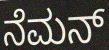
ನೆಮನ್